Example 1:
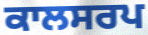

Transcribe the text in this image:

ਕਾਲਸਰਪ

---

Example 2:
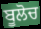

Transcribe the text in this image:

ਬੂਲੋਚ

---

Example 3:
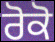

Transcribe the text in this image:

ਰੋਕੋ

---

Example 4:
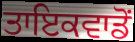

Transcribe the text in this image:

ਤਾਇਕਵਾਡੋਂ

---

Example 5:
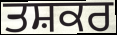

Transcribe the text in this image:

ਤਸ਼ਕਰ